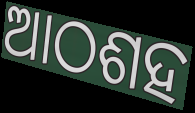
ଆଠଶହ